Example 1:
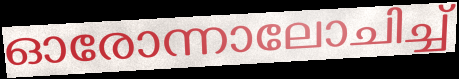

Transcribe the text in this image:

ഓരോന്നാലോചിച്ച്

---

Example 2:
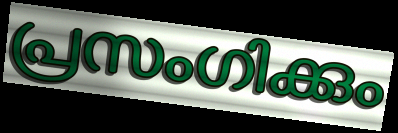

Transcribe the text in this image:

പ്രസംഗിക്കും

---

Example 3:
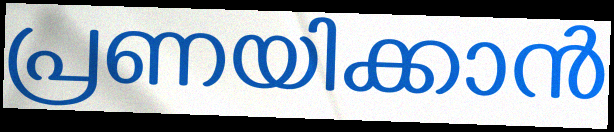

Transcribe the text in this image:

പ്രണയിക്കാൻ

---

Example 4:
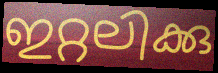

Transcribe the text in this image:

ഇറ്റലിക്കു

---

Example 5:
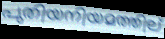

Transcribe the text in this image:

പുതിയനിയമത്തില്